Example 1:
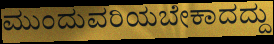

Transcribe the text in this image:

ಮುಂದುವರಿಯಬೇಕಾದದ್ದು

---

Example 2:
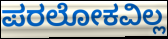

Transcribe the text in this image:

ಪರಲೋಕವಿಲ್ಲ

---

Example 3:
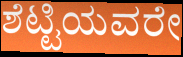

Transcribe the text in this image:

ಶೆಟ್ಟಿಯವರೇ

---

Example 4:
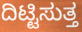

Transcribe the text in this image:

ದಿಟ್ಟಿಸುತ್ತ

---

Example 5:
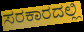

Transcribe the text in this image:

ಸರಕಾರದಲ್ಲಿ